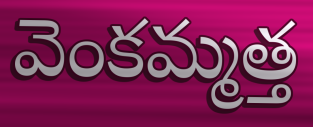
వెంకమ్మత్త